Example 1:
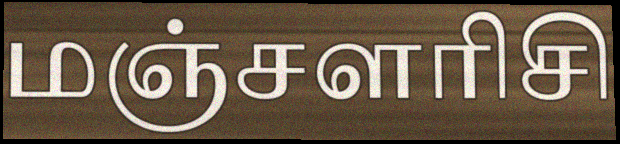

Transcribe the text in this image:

மஞ்சளரிசி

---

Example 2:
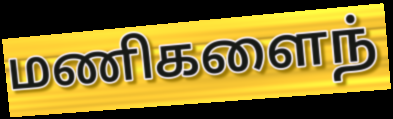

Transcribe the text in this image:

மணிகளைந்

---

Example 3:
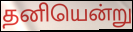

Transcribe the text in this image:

தனியென்று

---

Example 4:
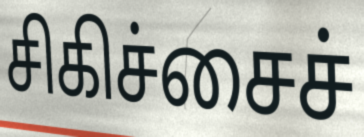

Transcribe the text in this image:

சிகிச்சைச்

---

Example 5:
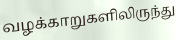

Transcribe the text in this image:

வழக்காறுகளிலிருந்து